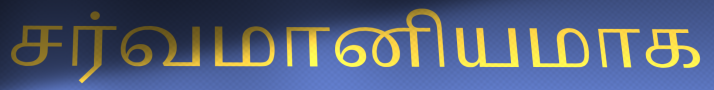
சர்வமானியமாக